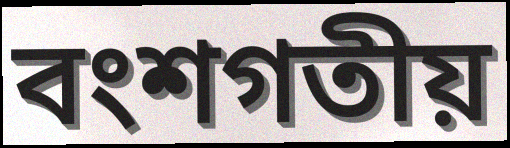
বংশগতীয়